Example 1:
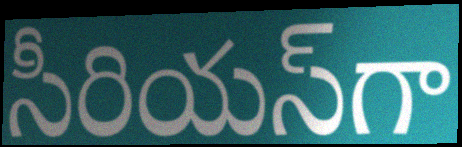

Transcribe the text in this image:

సీరియస్‌గా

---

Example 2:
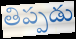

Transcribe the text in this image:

తిప్పడు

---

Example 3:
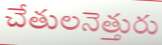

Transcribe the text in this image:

చేతులనెత్తురు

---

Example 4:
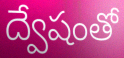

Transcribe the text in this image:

ద్వేషంతో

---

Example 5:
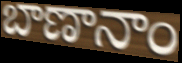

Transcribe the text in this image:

బాణానాం